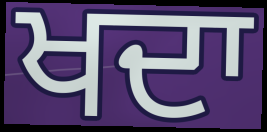
ਖਦਾ